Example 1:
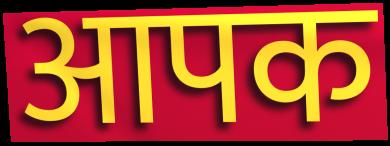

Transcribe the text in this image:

आपक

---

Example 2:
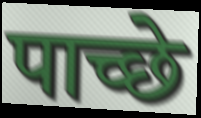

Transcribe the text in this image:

पाच्छे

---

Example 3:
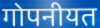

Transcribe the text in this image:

गोपनीयत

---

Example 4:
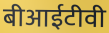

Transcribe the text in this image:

बीआईटीवी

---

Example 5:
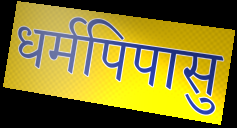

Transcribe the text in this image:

धर्मपिपासु